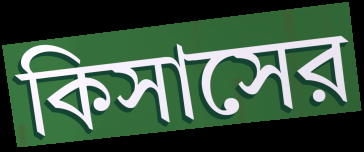
কিসাসের